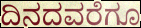
ದಿನದವರೆಗೂ